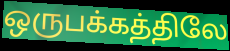
ஒருபக்கத்திலே